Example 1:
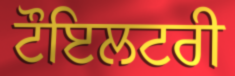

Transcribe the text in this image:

ਟੌਇਲਟਰੀ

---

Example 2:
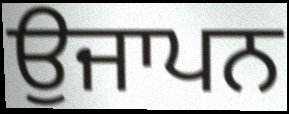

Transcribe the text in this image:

ਉਜਾਪਨ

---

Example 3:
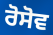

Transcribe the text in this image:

ਰੋਸੋਵ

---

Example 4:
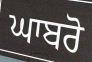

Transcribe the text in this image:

ਘਾਬਰੋ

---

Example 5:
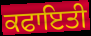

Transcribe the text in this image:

ਕਫਾਇਤੀ